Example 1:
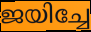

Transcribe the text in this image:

ജയിച്ചേ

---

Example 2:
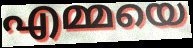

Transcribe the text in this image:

എമ്മയെ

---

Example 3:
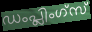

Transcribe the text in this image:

ഡംപ്ലിംഗ്സ്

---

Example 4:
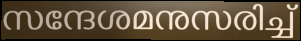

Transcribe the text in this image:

സന്ദേശമനുസരിച്ച്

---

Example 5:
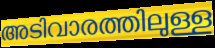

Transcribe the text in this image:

അടിവാരത്തിലുള്ള